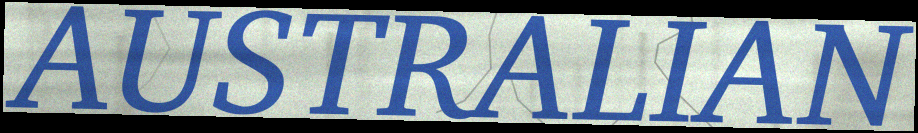
AUSTRALIAN